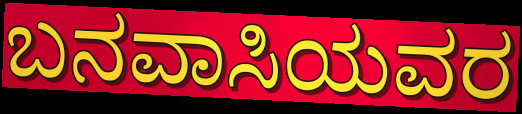
ಬನವಾಸಿಯವರ